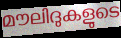
മൗലിദുകളുടെ